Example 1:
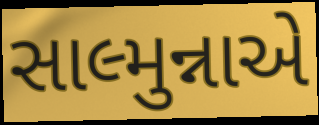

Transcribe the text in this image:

સાલ્મુન્નાએ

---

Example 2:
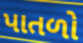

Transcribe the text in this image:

પાતળો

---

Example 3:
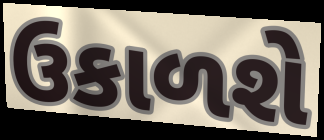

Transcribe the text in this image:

ઉકાળશે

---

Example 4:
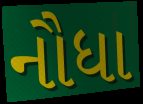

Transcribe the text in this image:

નૌધા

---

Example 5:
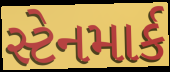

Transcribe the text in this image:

સ્ટેનમાર્ક